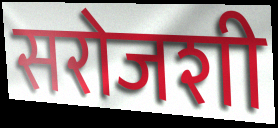
सरोजशी